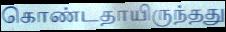
கொண்டதாயிருந்தது